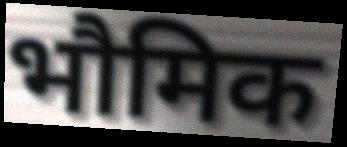
भौमिक